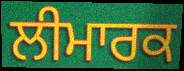
ਲੀਮਾਰਕ